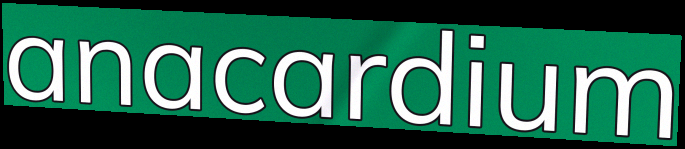
anacardium